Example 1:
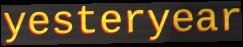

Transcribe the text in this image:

yesteryear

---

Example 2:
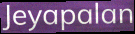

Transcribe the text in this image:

Jeyapalan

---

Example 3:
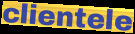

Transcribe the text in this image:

clientele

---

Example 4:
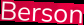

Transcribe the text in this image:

Berson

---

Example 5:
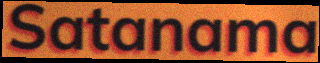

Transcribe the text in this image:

Satanama